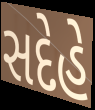
સદેહે